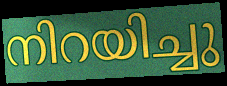
നിറയിച്ചു